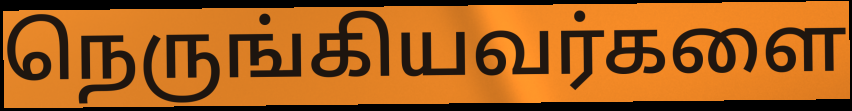
நெருங்கியவர்களை